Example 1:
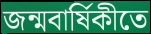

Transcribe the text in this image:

জন্মবাৰ্ষিকীতে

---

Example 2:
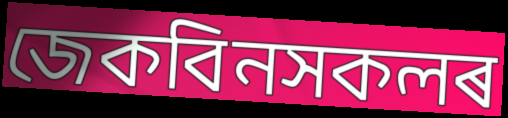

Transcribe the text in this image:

জেকবিনসকলৰ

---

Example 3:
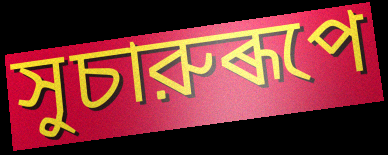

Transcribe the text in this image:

সুচাৰুৰূপে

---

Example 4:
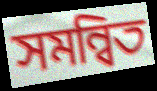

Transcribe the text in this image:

সমন্বিত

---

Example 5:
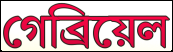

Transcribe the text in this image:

গেব্ৰিয়েল